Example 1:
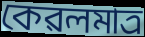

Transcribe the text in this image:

কেৱলমাত্ৰ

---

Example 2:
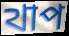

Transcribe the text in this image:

থাপ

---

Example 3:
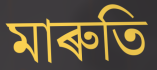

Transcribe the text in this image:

মাৰুতি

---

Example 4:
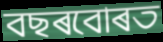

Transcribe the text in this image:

বছৰবোৰত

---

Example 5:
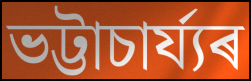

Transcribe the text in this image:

ভট্টাচাৰ্য্যৰ